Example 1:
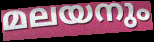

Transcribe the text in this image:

മലയനും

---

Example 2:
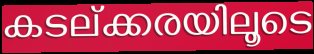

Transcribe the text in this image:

കടല്ക്കരയിലൂടെ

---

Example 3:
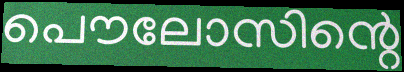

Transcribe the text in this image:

പൌലോസിന്റെ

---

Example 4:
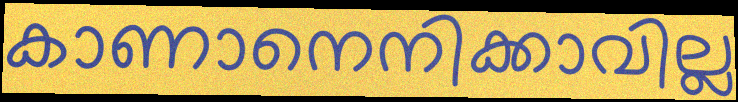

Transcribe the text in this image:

കാണാനെനിക്കാവില്ല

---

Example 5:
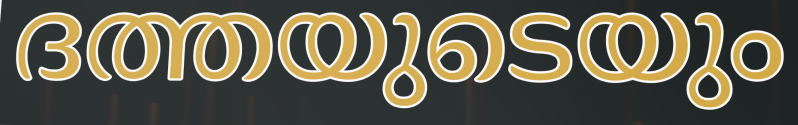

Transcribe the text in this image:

ദത്തയുടെയും